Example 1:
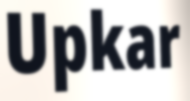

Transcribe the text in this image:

Upkar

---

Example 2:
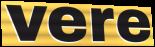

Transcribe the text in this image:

vere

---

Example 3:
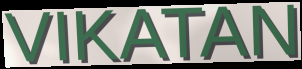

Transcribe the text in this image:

VIKATAN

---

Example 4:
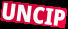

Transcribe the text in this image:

UNCIP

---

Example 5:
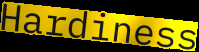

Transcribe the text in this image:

Hardiness